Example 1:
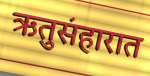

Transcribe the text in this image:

ऋतुसंहारात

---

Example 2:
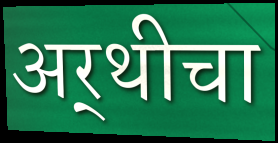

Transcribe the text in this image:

अर्थीचा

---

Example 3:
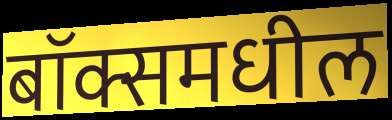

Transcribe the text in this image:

बॉक्समधील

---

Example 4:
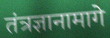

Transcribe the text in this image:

तंत्रज्ञानामागे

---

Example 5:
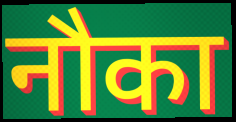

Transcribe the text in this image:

नौका